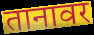
तानावर